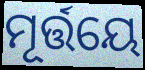
ମୂର୍ତ୍ତୟେ